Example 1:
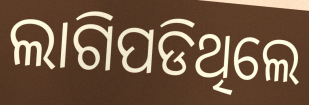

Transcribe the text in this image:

ଲାଗିପଡିଥିଲେ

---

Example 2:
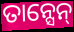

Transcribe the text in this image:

ତାନ୍ସେନ୍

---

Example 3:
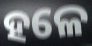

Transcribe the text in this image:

ହଳେ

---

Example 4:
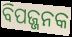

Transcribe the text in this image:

ବିପଜ୍ଜନକ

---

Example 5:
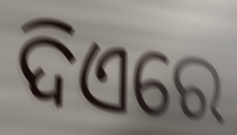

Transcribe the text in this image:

ଦିଏରେ